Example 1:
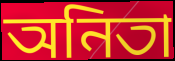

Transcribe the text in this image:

অনিতা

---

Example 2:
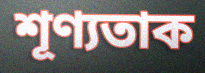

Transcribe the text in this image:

শূণ্যতাক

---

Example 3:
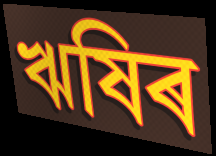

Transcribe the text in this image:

ঋষিৰ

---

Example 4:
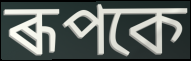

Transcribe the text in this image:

ৰূপকে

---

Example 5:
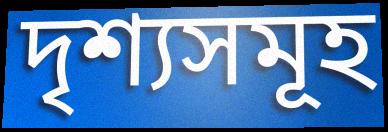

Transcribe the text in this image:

দৃশ্যসমূহ